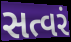
સત્વરં